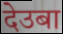
देउबा